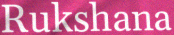
Rukshana